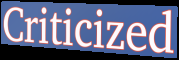
Criticized